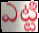
ఎట్టి